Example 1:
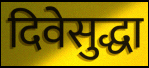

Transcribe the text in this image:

दिवेसुद्धा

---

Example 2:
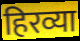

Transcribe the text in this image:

हिरव्‍या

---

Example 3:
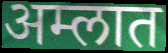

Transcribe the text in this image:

अम्लात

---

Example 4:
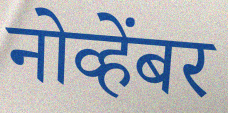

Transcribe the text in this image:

नोव्हेंबर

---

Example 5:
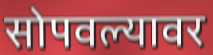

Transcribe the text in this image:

सोपवल्यावर